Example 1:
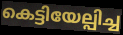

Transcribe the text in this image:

കെട്ടിയേല്പിച്ച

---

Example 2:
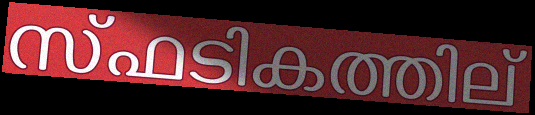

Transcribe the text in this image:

സ്ഫടികത്തില്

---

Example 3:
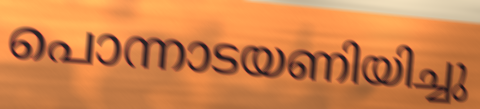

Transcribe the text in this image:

പൊന്നാടയണിയിച്ചു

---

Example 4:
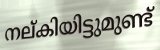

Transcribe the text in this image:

നല്കിയിട്ടുമുണ്ട്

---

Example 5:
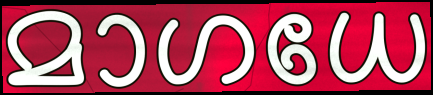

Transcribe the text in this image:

മാഗധേ